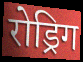
रोड्रिग